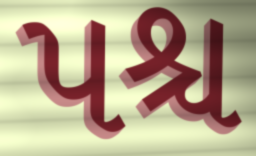
પશ્ચ